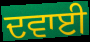
ਦਵਾਈ